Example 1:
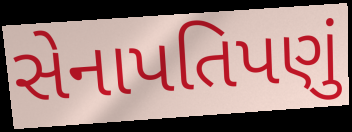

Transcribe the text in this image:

સેનાપતિપણું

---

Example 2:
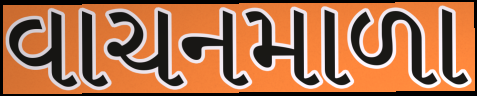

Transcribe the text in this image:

વાચનમાળા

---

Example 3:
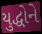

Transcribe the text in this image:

યુદ્ધોને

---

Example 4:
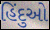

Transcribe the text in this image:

હિંદુઓ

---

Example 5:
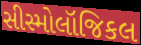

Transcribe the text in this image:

સીસ્મોલૉજિકલ